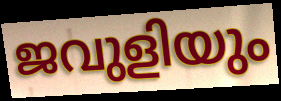
ജവുളിയും